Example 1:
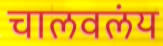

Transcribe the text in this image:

चालवलंय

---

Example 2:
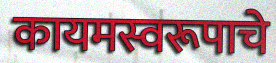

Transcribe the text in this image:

कायमस्वरूपाचे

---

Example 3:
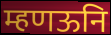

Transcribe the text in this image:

म्हणऊनि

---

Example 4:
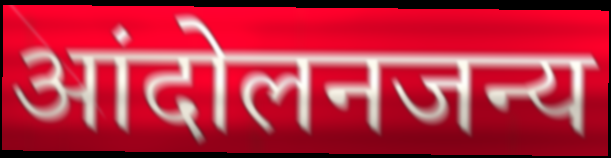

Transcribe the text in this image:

आंदोलनजन्य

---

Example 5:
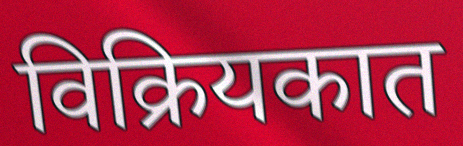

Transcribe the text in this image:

विक्रियकात